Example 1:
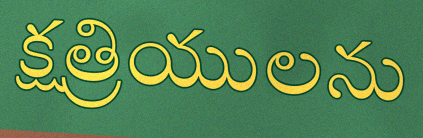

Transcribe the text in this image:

క్షత్రియులను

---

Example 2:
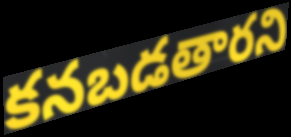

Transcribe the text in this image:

కనబడతారని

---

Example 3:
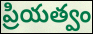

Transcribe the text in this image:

ప్రియత్వం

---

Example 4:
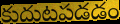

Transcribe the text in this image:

కుదుటపడడం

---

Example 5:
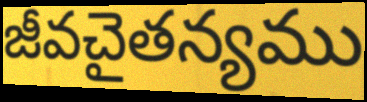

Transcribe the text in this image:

జీవచైతన్యము